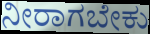
ನೀರಾಗಬೇಕು